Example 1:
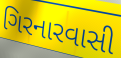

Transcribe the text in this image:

ગિરનારવાસી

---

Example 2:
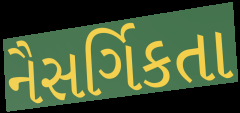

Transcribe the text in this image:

નૈસર્ગિકતા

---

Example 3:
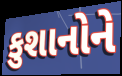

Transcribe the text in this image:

કુશાનોને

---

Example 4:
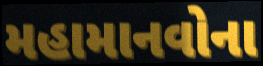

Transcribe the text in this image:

મહામાનવોના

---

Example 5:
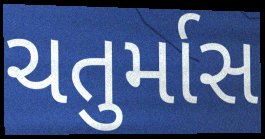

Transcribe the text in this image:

ચતુર્માસ